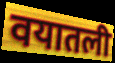
वयातली